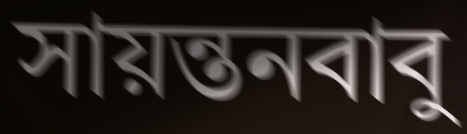
সায়ন্তনবাবু